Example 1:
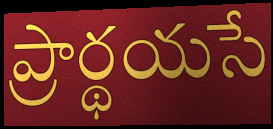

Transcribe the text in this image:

ప్రార్థయసే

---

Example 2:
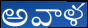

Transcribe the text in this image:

అవాళ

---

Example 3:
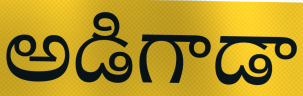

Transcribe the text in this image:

అడిగాడా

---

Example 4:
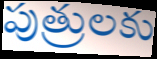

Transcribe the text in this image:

పుత్రులకు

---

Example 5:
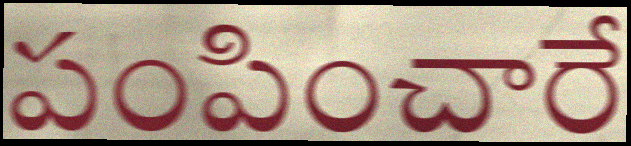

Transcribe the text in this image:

పంపించారే